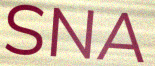
SNA